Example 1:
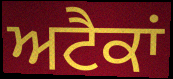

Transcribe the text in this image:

ਅਟੈਕਾਂ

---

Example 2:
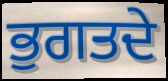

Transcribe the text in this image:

ਭੁਗਤਦੇ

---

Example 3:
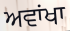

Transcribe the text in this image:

ਅਵਾਂਖਾ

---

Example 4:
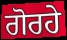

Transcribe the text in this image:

ਗੋਰਹੇ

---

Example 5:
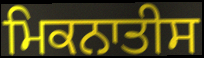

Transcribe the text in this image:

ਮਿਕਨਾਤੀਸ